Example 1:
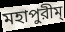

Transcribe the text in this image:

মহাপুরীম্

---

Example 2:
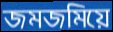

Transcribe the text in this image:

জমজমিয়ে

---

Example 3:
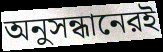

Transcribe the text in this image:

অনুসন্ধানেরই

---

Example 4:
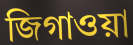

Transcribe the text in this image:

জিগাওয়া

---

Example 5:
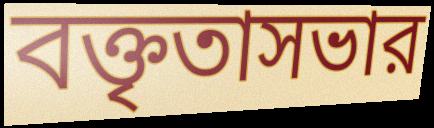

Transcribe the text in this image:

বক্তৃতাসভার